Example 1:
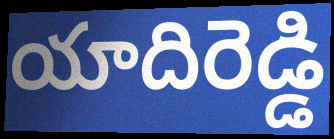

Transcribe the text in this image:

యాదిరెడ్డి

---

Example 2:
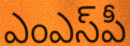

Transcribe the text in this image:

ఎంఎస్‌పీ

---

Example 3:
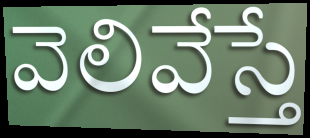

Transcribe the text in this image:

వెలివేస్తే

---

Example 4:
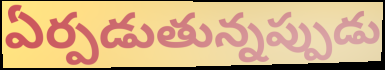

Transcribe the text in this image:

ఏర్పడుతున్నప్పుడు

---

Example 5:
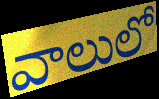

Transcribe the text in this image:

వాలులో